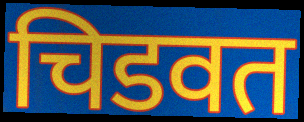
चिडवत